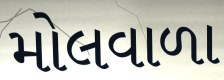
મોલવાળા